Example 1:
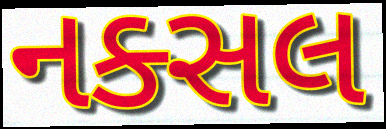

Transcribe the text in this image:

નક્સલ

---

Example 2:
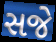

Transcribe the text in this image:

સજે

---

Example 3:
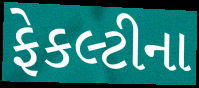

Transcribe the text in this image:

ફેકલ્ટીના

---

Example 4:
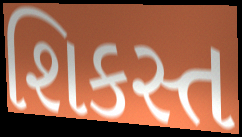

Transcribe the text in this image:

શિકસ્ત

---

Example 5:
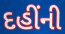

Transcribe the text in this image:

દહીંની